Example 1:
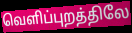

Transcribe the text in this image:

வெளிப்புறத்திலே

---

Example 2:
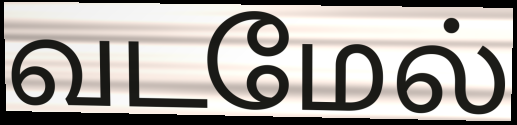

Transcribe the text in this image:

வடமேல்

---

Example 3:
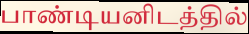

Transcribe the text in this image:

பாண்டியனிடத்தில்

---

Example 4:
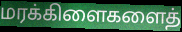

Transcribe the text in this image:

மரக்கிளைகளைத்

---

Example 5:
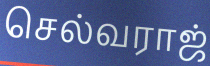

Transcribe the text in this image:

செல்வராஜ்